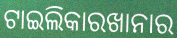
ଟାଇଲିକାରଖାନାର